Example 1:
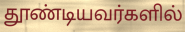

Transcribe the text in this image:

தூண்டியவர்களில்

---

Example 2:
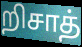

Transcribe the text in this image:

றிசாத்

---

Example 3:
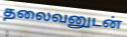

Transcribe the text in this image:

தலைவனுடன்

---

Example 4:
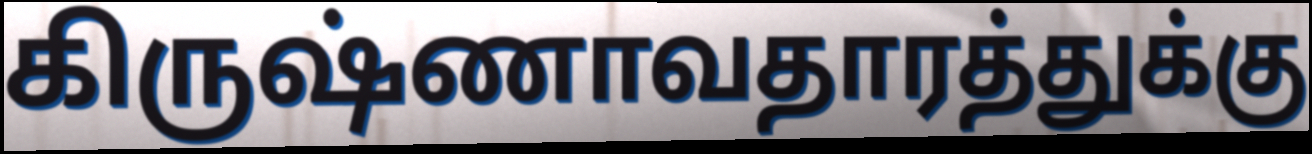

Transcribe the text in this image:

கிருஷ்ணாவதாரத்துக்கு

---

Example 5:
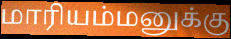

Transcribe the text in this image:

மாரியம்மனுக்கு